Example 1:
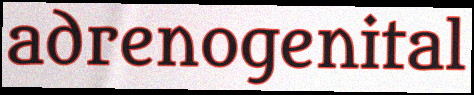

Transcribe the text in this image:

adrenogenital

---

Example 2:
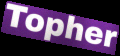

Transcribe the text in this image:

Topher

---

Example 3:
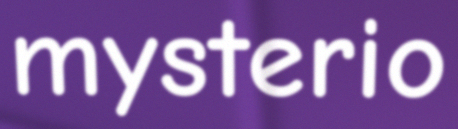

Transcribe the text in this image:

mysterio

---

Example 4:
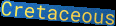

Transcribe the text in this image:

Cretaceous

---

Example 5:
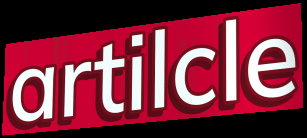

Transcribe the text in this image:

artilcle